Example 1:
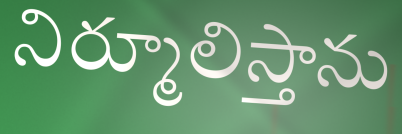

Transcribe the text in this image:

నిర్మూలిస్తాను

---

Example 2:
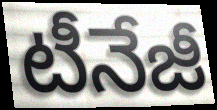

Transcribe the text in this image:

టీనేజీ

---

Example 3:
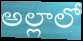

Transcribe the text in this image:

అల్లాలో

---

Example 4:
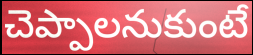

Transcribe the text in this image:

చెప్పాలనుకుంటే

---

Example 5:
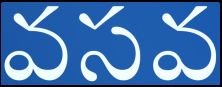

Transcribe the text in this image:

వసవ